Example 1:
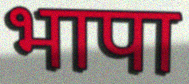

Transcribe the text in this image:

भापा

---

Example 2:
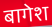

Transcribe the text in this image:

बागेश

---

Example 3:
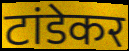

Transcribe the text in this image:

टांडेकर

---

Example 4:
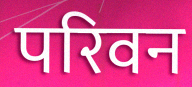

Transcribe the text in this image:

परिवन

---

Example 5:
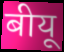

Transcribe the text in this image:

बीयू